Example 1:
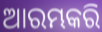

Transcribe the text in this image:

ଆରମ୍ଭକରି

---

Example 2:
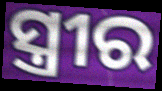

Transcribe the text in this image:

ସ୍ତ୍ରୀର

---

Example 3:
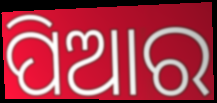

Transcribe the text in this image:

ପିଆର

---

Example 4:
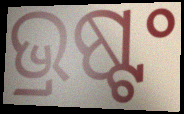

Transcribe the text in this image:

ଭ୍ରଷ୍ଟଂ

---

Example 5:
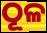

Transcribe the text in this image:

ଠୂଳ